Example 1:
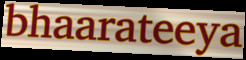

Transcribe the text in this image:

bhaarateeya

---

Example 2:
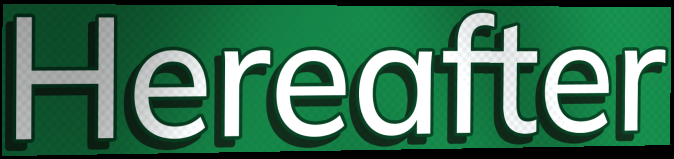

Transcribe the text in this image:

Hereafter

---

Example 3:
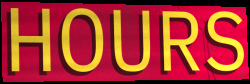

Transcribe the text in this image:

HOURS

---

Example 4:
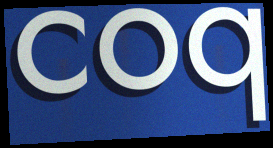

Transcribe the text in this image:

coq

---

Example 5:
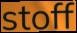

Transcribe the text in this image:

stoff